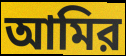
আমির